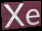
Xe